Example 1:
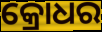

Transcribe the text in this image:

କ୍ରୋଧର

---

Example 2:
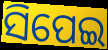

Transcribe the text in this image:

ସିପେଇ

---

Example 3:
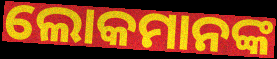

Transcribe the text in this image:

ଲୋକମାନଙ୍କ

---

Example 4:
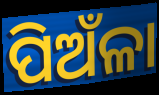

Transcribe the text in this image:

ପିଅଁଳା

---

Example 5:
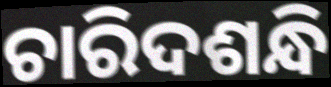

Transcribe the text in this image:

ଚାରିଦଶନ୍ଧି